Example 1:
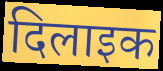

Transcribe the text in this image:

दिलाइक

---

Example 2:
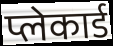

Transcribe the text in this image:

प्लेकार्ड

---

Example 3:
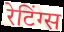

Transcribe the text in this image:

रेटिंग्स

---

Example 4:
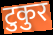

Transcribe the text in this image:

टुकुर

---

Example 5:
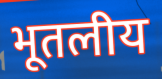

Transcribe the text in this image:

भूतलीय